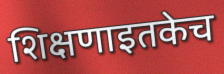
शिक्षणाइतकेच